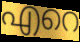
എറെ